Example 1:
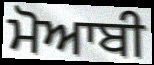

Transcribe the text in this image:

ਮੋਆਬੀ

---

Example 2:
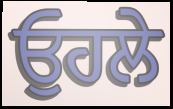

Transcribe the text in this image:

ਓੁਹਲੇ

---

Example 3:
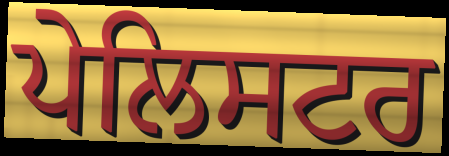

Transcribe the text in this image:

ਪੇਲਿਸਟਰ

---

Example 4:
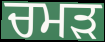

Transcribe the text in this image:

ਚਮੜ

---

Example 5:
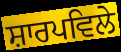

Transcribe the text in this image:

ਸ਼ਾਰਪਵਿਲੇ